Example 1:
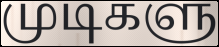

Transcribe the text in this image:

முடிகளு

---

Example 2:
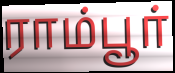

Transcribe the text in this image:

ராம்பூர்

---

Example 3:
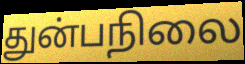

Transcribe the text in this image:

துன்பநிலை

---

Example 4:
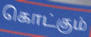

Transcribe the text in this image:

கொட்கும்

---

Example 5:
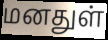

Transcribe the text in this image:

மனதுள்